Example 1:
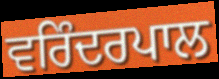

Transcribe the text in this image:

ਵਰਿੰਦਰਪਾਲ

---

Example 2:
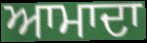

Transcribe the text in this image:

ਆਮਾਦਾ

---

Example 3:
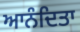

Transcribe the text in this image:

ਆਨੰਦਿਤਾ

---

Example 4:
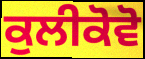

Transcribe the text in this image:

ਕੁਲੀਕੋਵੋ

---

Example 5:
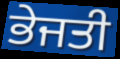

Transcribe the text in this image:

ਭੇਜਤੀ